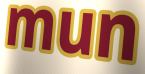
mun